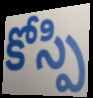
కోస్పి